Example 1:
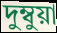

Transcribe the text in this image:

দুম্বুয়া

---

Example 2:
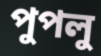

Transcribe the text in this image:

পুপলু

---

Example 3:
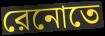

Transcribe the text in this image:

রেনোতে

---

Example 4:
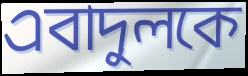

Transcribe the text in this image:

এবাদুলকে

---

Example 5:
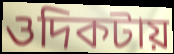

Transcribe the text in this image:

ওদিকটায়